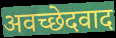
अवच्छेदवाद